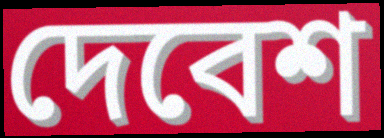
দেবেশ